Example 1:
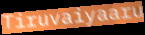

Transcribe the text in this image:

Tiruvaiyaaru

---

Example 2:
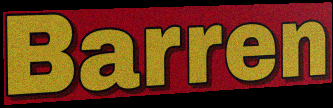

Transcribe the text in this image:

Barren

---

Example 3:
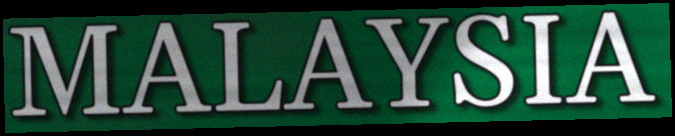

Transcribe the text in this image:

MALAYSIA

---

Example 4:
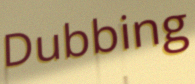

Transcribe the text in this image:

Dubbing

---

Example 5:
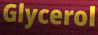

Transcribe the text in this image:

Glycerol